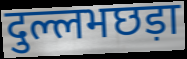
दुल्लभछड़ा